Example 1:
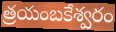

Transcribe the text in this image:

త్రయంబకేశ్వరం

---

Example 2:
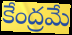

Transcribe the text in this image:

కేంద్రమే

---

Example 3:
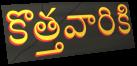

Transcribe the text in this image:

కొత్తవారికి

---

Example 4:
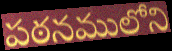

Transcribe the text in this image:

పఠనములోని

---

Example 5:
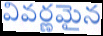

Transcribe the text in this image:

వివర్ణమైన